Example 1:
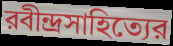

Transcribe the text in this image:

রবীন্দ্রসাহিত্যের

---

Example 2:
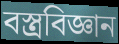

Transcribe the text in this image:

বস্ত্রবিজ্ঞান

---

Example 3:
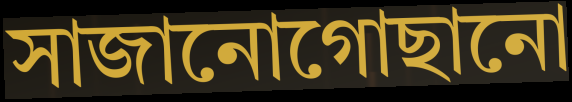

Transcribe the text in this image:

সাজানোগোছানো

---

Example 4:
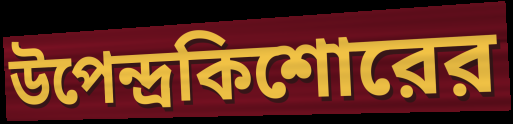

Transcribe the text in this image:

উপেন্দ্রকিশোরের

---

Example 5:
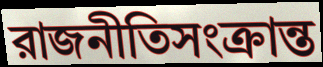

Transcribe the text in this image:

রাজনীতিসংক্রান্ত